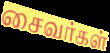
சைவர்கள்